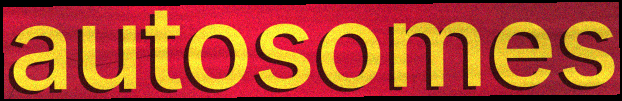
autosomes